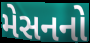
મેસનનો